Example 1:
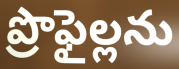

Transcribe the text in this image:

ప్రొఫైల్లను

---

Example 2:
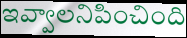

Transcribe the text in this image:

ఇవ్వాలనిపించింది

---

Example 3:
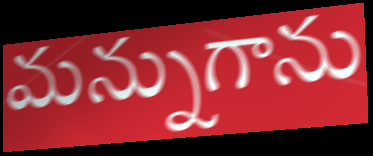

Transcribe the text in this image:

మన్నుగాను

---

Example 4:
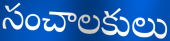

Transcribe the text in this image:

సంచాలకులు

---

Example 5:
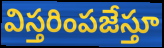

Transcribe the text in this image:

విస్తరింపజేస్తూ